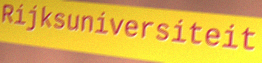
Rijksuniversiteit